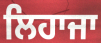
ਲਿਹਾਜਾ